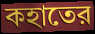
কহাতের